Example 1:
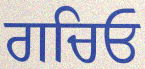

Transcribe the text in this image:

ਗਚਿਓ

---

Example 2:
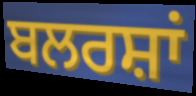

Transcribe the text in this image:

ਬਲਰਸ਼ਾਂ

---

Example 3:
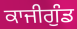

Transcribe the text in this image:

ਕਾਜੀਗੁੰਡ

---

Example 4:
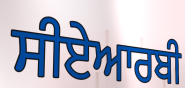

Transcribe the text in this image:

ਸੀਏਆਰਬੀ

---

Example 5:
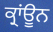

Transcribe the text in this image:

ਕ੍ਰਾਂਊਨ